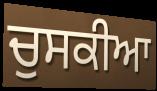
ਚੁਸਕੀਆ